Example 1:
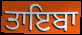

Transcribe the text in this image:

ਤਾਇਬਾ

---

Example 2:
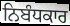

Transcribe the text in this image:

ਨਿਬੰਧਕਾਰ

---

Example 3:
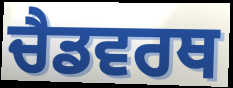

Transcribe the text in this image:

ਚੈਡਵਰਥ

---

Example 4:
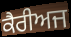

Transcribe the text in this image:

ਕੈਰੀਅਜ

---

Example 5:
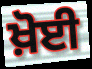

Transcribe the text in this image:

ਖ਼ੋਈ